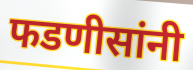
फडणीसांनी